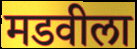
मडवीला